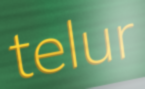
telur